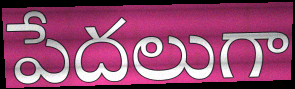
పేదలుగా